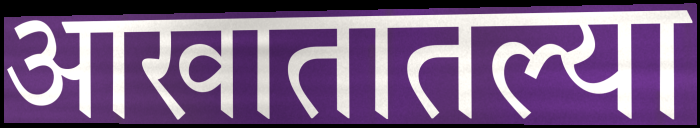
आखातातल्या